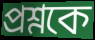
প্রশ্নকে